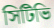
সিটিভি